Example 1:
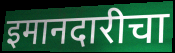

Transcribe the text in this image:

इमानदारीचा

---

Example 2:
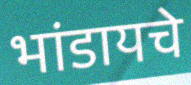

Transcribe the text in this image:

भांडायचे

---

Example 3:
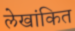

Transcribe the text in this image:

लेखांकित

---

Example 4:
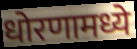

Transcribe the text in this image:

धोरणामध्ये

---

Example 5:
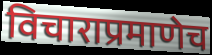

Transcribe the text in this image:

विचाराप्रमाणेच